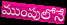
ముంపులోనే